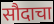
सौदाचा